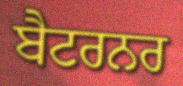
ਬੈਟਰਨਰ